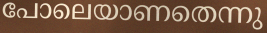
പോലെയാണതെന്നു